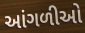
આંગળીઓ